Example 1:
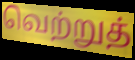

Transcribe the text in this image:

வெற்றுத்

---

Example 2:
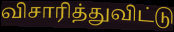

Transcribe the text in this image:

விசாரித்துவிட்டு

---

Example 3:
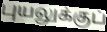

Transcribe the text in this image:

புயலுக்குப்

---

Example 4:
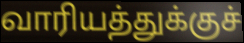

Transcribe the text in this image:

வாரியத்துக்குச்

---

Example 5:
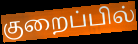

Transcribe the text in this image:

குறைப்பில்